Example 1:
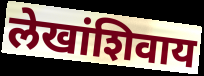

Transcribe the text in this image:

लेखांशिवाय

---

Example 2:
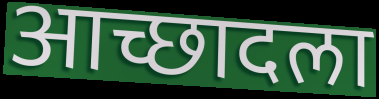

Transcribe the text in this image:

आच्छादला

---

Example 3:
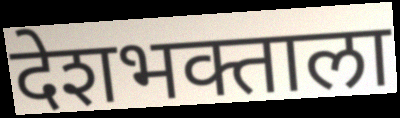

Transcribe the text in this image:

देशभक्ताला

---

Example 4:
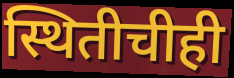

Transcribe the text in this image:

स्थितीचीही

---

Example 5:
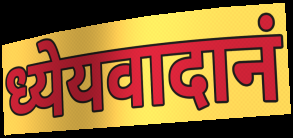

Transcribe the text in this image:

ध्येयवादानं